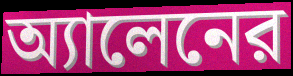
অ্যালেনের